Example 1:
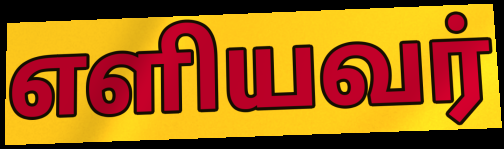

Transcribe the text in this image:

எளியவர்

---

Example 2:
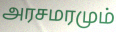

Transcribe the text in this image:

அரசமரமும்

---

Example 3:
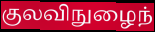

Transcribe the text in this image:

குலவிநுழைந்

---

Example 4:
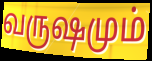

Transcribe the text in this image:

வருஷமும்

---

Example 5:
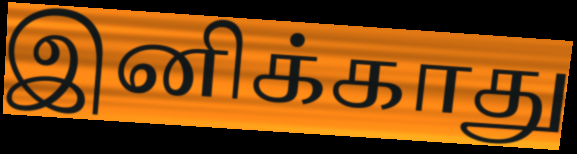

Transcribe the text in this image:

இனிக்காது